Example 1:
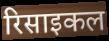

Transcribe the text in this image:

रिसाइकल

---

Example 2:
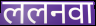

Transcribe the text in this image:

ललनवा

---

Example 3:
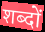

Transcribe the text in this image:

शब्दों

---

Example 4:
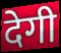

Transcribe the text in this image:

देगी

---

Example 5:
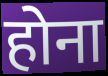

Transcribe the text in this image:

होना